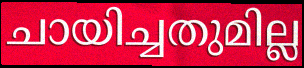
ചായിച്ചതുമില്ല